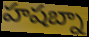
హషబ్నా